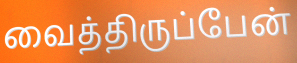
வைத்திருப்பேன்